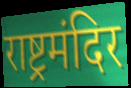
राष्ट्रमंदिर